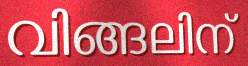
വിങ്ങലിന്